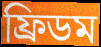
ফ্ৰিডম